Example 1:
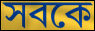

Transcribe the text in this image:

সবকে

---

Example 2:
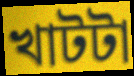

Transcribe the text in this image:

খাটটা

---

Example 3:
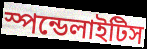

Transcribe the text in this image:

স্পন্ডেলাইটিস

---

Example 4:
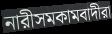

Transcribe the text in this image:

নারীসমকামবাদীরা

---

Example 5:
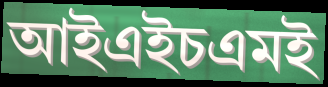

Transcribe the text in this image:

আইএইচএমই